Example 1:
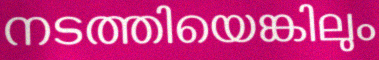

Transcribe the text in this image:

നടത്തിയെങ്കിലും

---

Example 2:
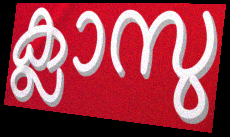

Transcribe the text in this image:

ക്ലാസു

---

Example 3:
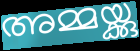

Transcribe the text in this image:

അമ്മയ്ക്കു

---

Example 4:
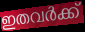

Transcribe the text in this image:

ഇതവർക്ക്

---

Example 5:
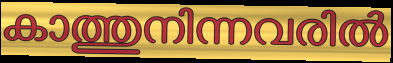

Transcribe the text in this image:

കാത്തുനിന്നവരിൽ